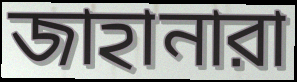
জাহানারা